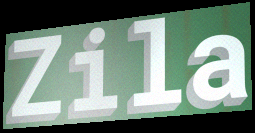
Zila